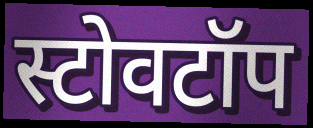
स्टोवटॉप